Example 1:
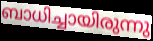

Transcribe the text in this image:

ബാധിച്ചായിരുന്നു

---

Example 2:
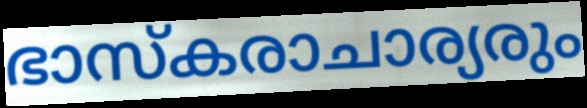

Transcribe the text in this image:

ഭാസ്കരാചാര്യരും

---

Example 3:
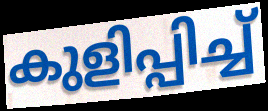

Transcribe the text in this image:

കുളിപ്പിച്ച്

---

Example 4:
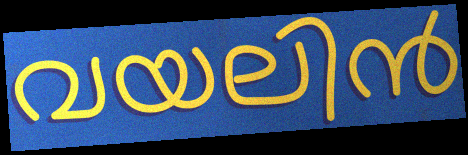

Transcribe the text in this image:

വയലിൻ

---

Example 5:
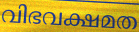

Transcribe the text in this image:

വിഭവക്ഷമത